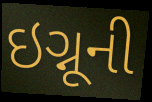
ઇગ્નૂની